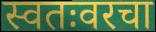
स्वतःवरचा